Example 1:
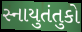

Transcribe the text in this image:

સ્નાયુતંતુકો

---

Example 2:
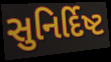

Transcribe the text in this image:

સુનિર્દિષ્ટ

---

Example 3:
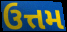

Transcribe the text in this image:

ઉત્તમ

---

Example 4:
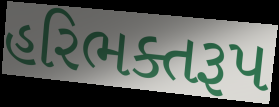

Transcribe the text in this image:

હરિભક્તરૂપ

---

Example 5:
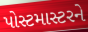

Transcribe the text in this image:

પોસ્ટમાસ્ટરને